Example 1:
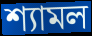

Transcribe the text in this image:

শ্যামল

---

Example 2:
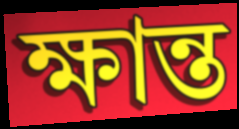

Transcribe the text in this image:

ক্ষান্ত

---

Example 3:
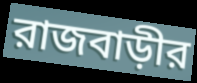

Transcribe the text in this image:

রাজবাড়ীর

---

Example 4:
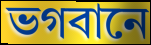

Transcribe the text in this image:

ভগবানে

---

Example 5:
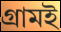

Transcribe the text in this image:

গ্রামই